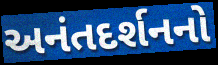
અનંતદર્શનનો